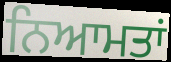
ਨਿਆਮਤਾਂ